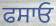
ਫਸਾਓ